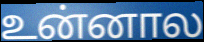
உன்னால